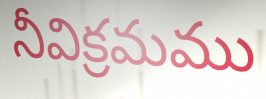
నీవిక్రమము